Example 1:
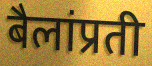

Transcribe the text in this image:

बैलांप्रती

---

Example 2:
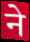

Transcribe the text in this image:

ने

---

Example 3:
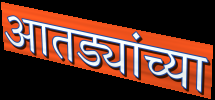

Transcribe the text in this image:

आतड्यांच्या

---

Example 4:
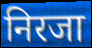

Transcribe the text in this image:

निरजा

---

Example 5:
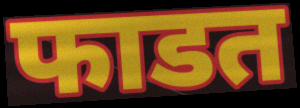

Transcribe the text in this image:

फाडत